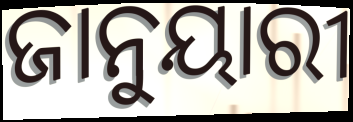
ଜାନୁୟାରୀ